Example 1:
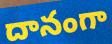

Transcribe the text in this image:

దానంగా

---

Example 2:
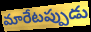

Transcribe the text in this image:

మారేటప్పుడు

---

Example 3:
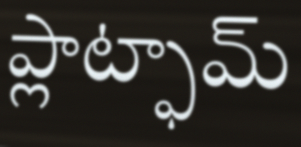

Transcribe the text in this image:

ప్లాట్ఫామ్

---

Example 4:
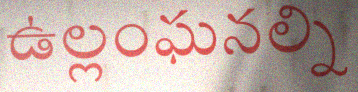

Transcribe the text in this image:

ఉల్లంఘనల్ని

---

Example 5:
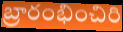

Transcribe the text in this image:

బ్రారంభించిరి